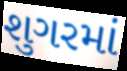
શુગરમાં